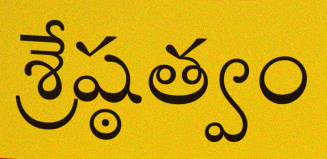
శ్రేష్ఠత్వం